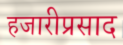
हजारीप्रसाद